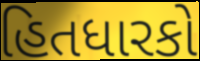
હિતધારકો